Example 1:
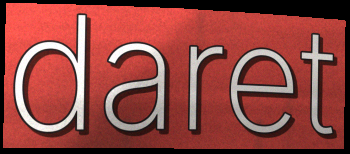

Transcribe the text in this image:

daret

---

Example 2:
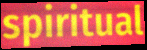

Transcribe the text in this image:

spiritual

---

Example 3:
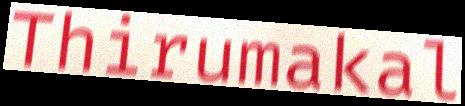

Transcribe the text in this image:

Thirumakal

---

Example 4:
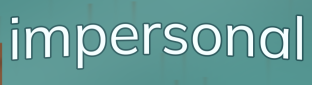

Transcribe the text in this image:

impersonal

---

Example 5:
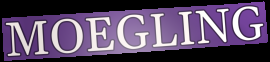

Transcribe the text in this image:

MOEGLING